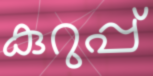
കുറുപ്പ്